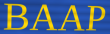
BAAP